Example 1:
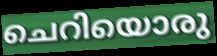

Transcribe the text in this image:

ചെറിയൊരു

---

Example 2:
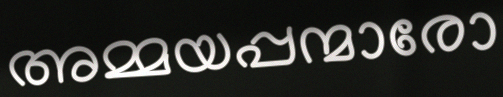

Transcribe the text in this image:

അമ്മയപ്പന്മാരോ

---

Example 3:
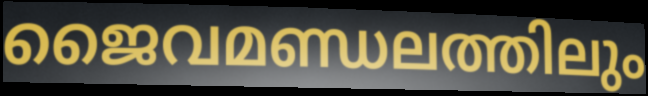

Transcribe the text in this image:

ജൈവമണ്ഡലത്തിലും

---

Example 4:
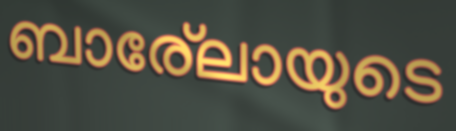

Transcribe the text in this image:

ബാര്ലോയുടെ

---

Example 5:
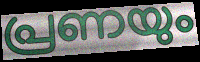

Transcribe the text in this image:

പ്രണയും